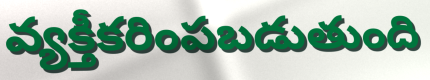
వ్యక్తీకరింపబడుతుంది